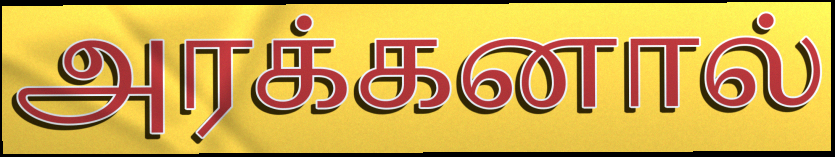
அரக்கனால்